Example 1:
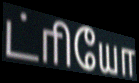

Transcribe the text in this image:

ட்ரியோ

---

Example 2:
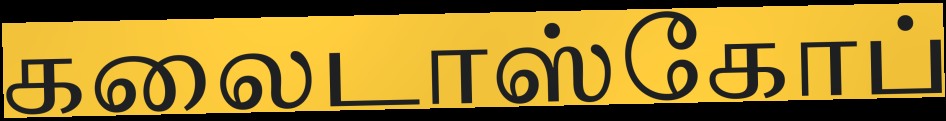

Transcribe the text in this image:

கலைடாஸ்கோப்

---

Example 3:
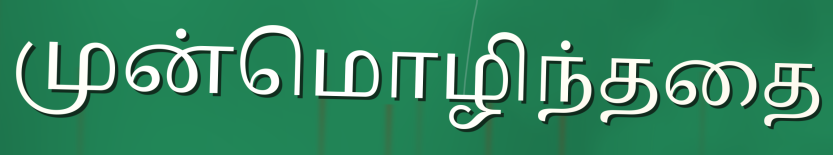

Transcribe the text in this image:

முன்மொழிந்ததை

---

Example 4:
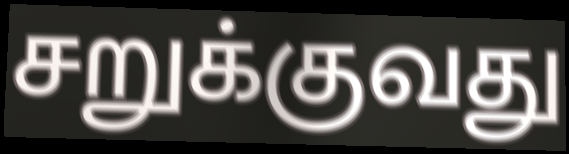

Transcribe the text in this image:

சறுக்குவது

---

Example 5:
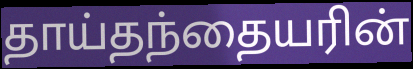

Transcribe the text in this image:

தாய்தந்தையரின்